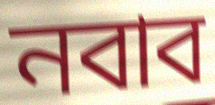
নবাব